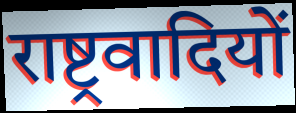
राष्ट्रवादियों